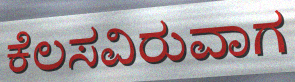
ಕೆಲಸವಿರುವಾಗ